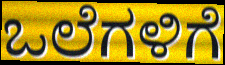
ಒಲೆಗಳಿಗೆ